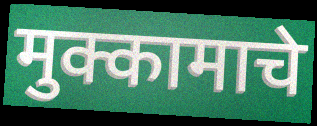
मुक्कामाचे